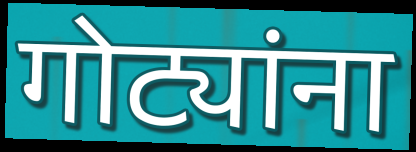
गोट्यांना